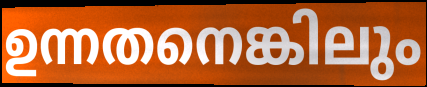
ഉന്നതനെങ്കിലും